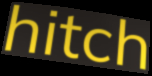
hitch